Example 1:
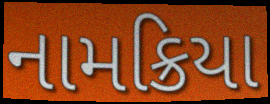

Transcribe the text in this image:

નામક્રિયા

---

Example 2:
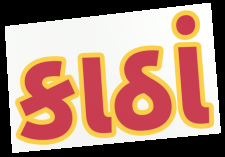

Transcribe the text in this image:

કાઠાં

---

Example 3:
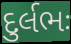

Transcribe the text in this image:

દુર્લભઃ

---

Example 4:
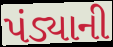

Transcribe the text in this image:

પંડ્યાની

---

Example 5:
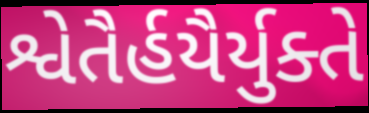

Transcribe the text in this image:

શ્વેતૈર્હયૈર્યુક્તે